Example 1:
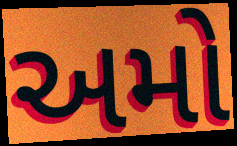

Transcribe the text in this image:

અમો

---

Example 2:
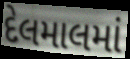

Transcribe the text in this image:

દેલમાલમાં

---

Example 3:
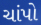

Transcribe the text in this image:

ચાંપો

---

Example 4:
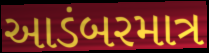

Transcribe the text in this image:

આડંબરમાત્ર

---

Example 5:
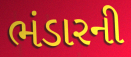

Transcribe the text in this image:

ભંડારની